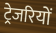
ट्रेजरियों